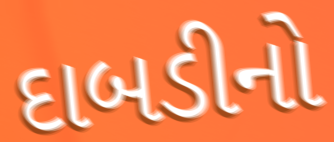
દાબડીનો